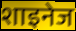
शाइनेज